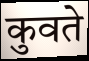
कुवते